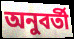
অনুবর্তী